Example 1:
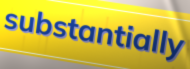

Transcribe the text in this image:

substantially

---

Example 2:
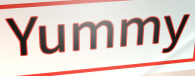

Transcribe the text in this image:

Yummy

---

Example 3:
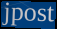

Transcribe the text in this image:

jpost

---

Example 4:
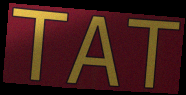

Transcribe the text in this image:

TAT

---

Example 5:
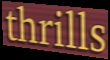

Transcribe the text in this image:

thrills